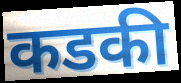
कडकी